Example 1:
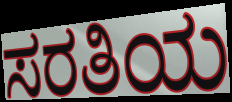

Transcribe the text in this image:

ಸರತಿಯ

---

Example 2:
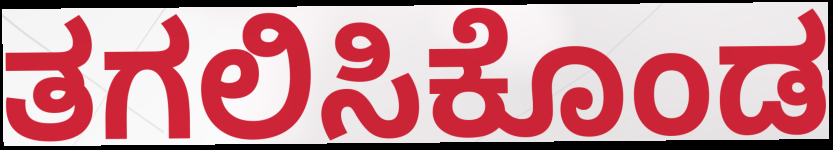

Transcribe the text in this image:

ತಗಲಿಸಿಕೊಂಡ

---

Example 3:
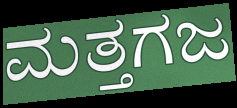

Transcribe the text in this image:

ಮತ್ತಗಜ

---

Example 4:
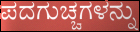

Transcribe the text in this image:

ಪದಗುಚ್ಚಗಳನ್ನು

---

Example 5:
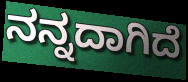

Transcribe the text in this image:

ನನ್ನದಾಗಿದೆ